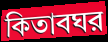
কিতাবঘর